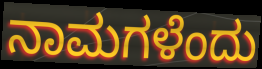
ನಾಮಗಳೆಂದು